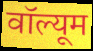
वॉल्यूम